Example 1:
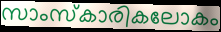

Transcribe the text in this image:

സാംസ്കാരികലോകം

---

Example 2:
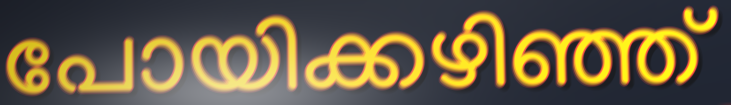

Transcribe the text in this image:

പോയിക്കഴിഞ്ഞ്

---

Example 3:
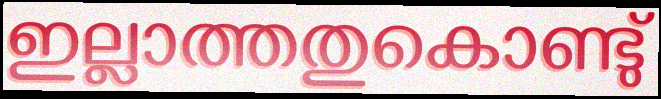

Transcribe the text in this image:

ഇല്ലാത്തതുകൊണ്ടു്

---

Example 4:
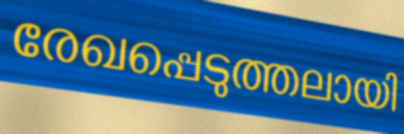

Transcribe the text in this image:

രേഖപ്പെടുത്തലായി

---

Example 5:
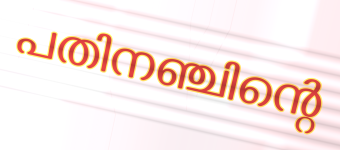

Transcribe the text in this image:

പതിനഞ്ചിന്റെ